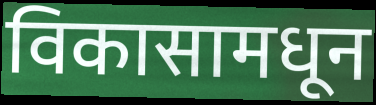
विकासामधून